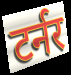
टर्नर